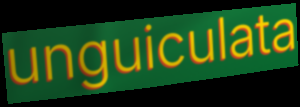
unguiculata